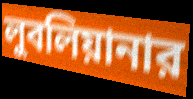
লুবলিয়ানার